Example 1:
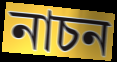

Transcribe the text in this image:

নাচন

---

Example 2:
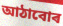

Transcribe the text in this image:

আঠাবোৰ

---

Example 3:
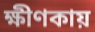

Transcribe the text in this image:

ক্ষীণকায়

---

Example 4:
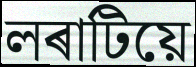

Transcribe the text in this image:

লৰাটিয়ে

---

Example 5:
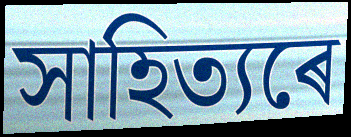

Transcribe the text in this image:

সাহিত্যৰে